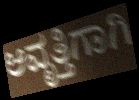
ಆವೃತ್ತಿಗಾಗಿ